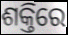
ଶକ୍ତିରେ